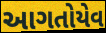
આગતોયેવ